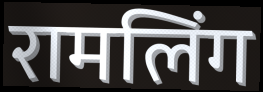
रामलिंग